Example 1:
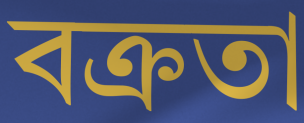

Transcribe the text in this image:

বক্ৰতা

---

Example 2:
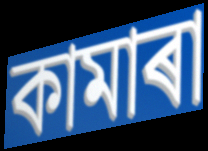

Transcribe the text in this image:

কামাৰা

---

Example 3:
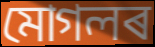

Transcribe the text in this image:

মোগলৰ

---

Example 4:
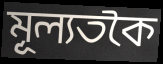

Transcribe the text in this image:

মূল্যতকৈ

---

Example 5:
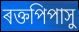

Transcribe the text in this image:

ৰক্তপিপাসু